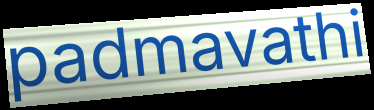
padmavathi